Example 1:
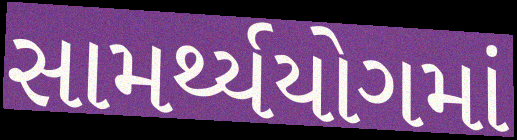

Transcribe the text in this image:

સામર્થ્યયોગમાં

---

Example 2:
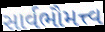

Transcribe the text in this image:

સાર્વભૌમત્ત્વ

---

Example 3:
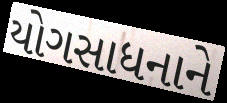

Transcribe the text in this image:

યોગસાધનાને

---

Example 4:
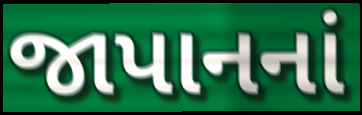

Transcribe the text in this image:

જાપાનનાં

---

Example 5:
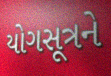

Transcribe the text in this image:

યોગસૂત્રને